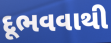
દૂભવવાથી